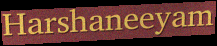
Harshaneeyam